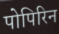
पोपिरिन